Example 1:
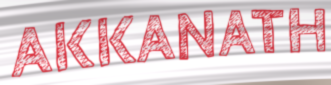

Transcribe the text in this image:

AKKANATH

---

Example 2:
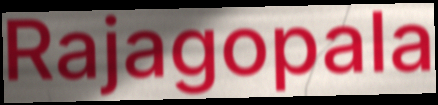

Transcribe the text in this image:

Rajagopala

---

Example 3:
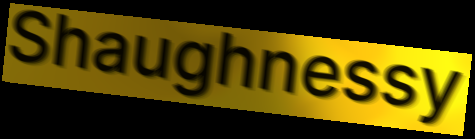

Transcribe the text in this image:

Shaughnessy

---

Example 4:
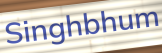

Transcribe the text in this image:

Singhbhum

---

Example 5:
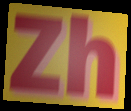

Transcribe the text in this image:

Zh